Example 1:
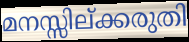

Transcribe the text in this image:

മനസ്സില്ക്കരുതി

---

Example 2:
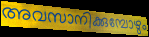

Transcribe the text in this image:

അവസാനിക്കുമ്പോഴും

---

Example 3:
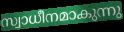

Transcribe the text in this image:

സ്വാധീനമാകുന്നു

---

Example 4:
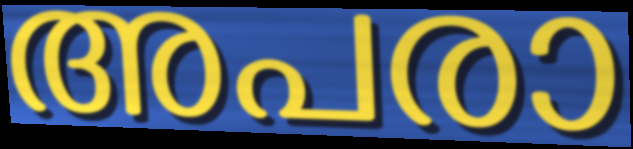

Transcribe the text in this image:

അപരാ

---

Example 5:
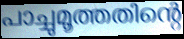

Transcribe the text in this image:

പാച്ചുമൂത്തതിന്റെ